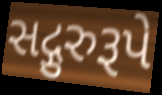
સદ્ગુરુરૂપે